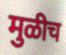
मुळीच